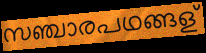
സഞ്ചാരപഥങ്ങള്